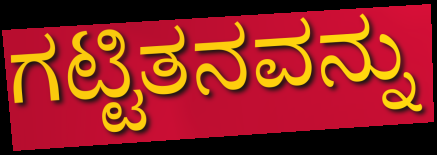
ಗಟ್ಟಿತನವನ್ನು